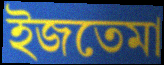
ইজতেমা